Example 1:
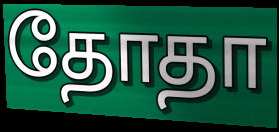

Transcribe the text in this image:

தோதா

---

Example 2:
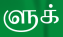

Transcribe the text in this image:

ளுக்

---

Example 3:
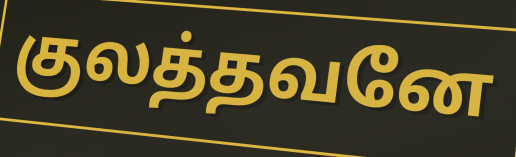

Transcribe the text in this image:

குலத்தவனே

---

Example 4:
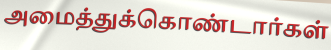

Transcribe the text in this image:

அமைத்துக்கொண்டார்கள்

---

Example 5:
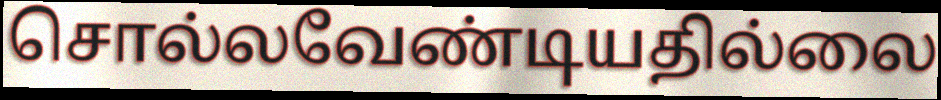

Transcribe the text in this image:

சொல்லவேண்டியதில்லை